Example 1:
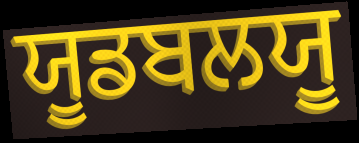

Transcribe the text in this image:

ਯੂਡਬਲਯੂ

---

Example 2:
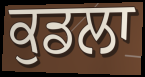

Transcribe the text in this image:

ਕੁਡਲਾ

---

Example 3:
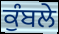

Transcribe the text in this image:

ਕੁੰਬਲੇ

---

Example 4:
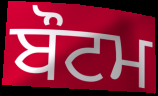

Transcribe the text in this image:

ਬੌਟਮ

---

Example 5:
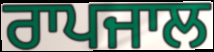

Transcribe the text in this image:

ਰਾਪਜਾਲ